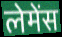
लेमेंस